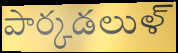
పార్కడలుళ్